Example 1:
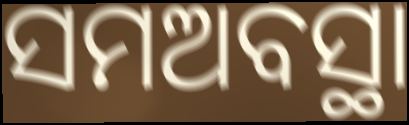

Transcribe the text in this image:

ସମଅବସ୍ଥା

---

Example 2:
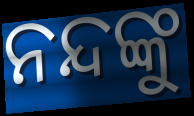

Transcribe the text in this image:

ନନ୍ଦଙ୍କୁ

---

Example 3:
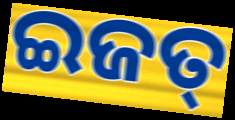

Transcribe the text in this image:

ଇଜତ୍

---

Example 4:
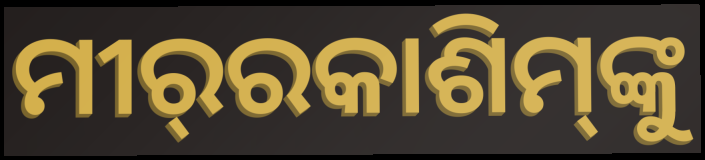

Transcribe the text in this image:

ମୀର୍‌ରକାଶିମ୍‌ଙ୍କୁ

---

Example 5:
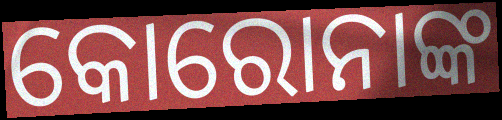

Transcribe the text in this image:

କୋରୋନାଙ୍କ